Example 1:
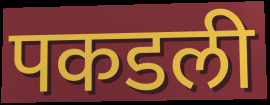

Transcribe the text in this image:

पकडली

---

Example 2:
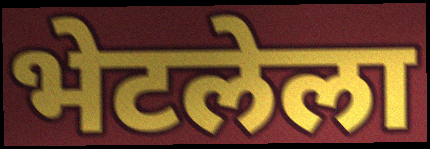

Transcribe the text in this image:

भेटलेला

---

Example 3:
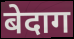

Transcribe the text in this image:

बेदाग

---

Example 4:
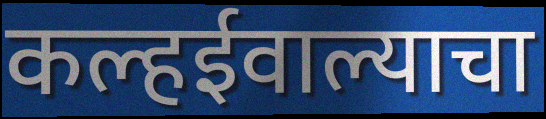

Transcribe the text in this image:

कल्हईवाल्याचा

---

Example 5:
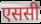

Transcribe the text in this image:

एससी